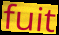
fuit